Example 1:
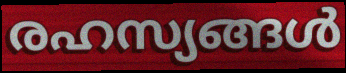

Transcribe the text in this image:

രഹസ്യങ്ങൾ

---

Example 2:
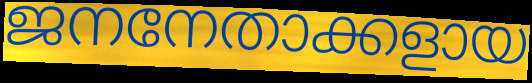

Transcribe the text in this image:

ജനനേതാക്കളായ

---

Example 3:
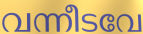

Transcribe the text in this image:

വന്നീടവേ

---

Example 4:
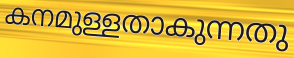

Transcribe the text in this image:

കനമുള്ളതാകുന്നതു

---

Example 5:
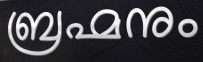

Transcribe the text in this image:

ബ്രഹ്മനും